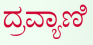
ದ್ರವ್ಯಾಣಿ